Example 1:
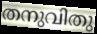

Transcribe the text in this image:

തനുവിതു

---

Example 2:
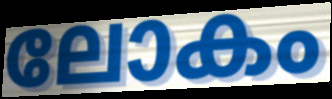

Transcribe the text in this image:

ലോകം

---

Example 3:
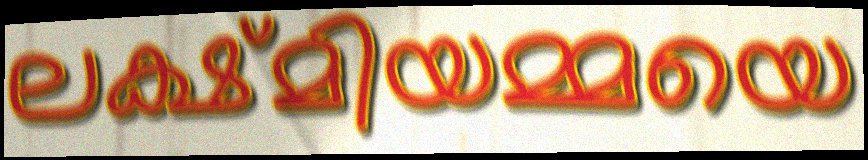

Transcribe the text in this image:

ലക്ഷ്മിയമ്മയെ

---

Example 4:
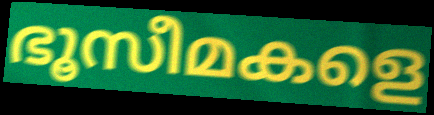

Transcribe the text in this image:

ഭൂസീമകളെ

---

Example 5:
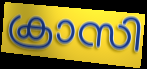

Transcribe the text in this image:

ക്രാസി